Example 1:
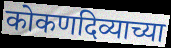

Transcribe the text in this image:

कोकणदिव्याच्या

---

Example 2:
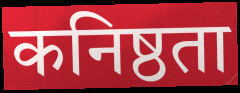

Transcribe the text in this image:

कनिष्ठता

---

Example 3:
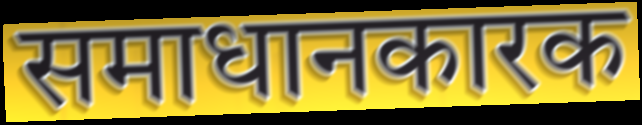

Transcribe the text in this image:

समाधानकारक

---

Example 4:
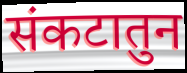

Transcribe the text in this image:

संकटातुन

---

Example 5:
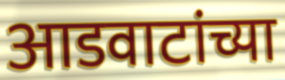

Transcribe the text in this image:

आडवाटांच्या